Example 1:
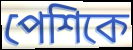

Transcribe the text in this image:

পেশিকে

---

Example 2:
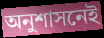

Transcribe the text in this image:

অনুশাসনেই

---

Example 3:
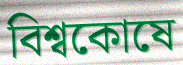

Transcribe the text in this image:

বিশ্বকোষে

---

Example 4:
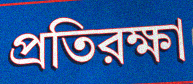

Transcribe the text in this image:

প্রতিরক্ষা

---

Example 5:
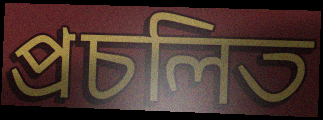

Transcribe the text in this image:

প্রচলিত